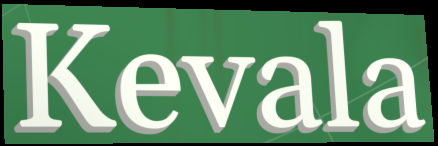
Kevala